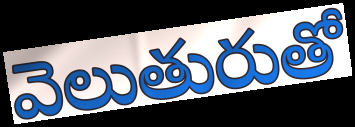
వెలుతురుతో